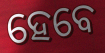
ହେବେ